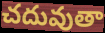
చదువుతా